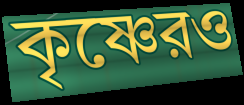
কৃষ্ণেরও